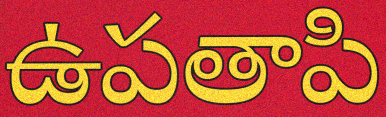
ఉపతాపి